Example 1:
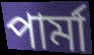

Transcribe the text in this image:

পার্মা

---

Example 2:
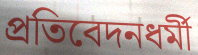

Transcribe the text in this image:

প্রতিবেদনধর্মী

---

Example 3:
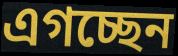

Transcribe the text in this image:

এগচ্ছেন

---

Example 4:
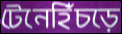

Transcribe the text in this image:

টেনেহিঁচড়ে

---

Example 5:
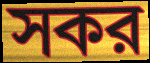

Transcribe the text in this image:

সকর